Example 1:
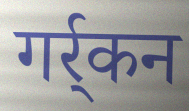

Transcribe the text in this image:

गर्र्कन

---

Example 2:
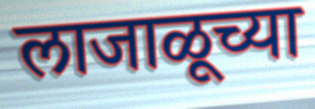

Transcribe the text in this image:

लाजाळूच्या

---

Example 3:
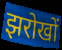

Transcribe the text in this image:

झरोखों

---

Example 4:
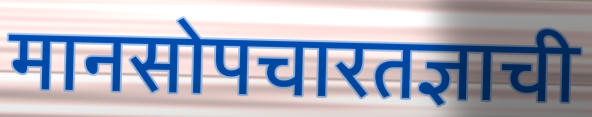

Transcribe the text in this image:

मानसोपचारतज्ञाची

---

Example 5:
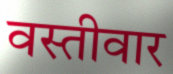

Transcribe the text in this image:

वस्तीवार